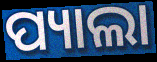
ପ୍ୟାଲା